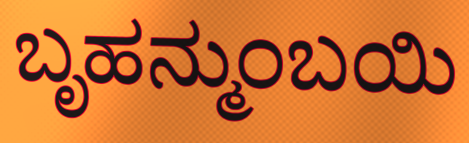
ಬೃಹನ್ಮುಂಬಯಿ